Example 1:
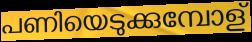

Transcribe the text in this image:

പണിയെടുക്കുമ്പോള്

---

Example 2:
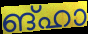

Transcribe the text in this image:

ങ്ഹാ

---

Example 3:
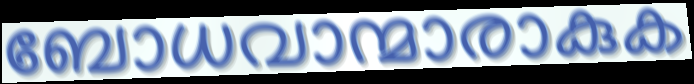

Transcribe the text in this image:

ബോധവാന്മാരാകുക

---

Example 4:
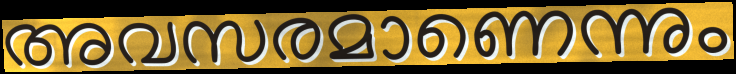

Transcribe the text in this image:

അവസരമാണെന്നും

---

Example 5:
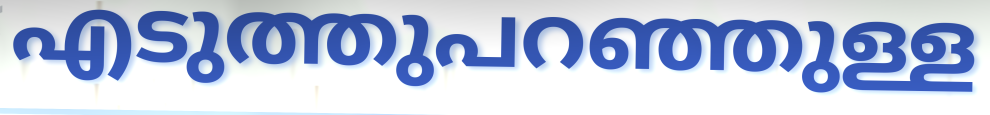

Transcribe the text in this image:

എടുത്തുപറഞ്ഞുള്ള